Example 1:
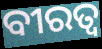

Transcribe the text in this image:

ବୀରତ୍ଵ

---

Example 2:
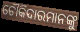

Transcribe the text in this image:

ଚୌକିଦାରମାନଙ୍କୁ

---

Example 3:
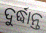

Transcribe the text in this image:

ଦୁର୍ଦ୍ଧାନ୍ତ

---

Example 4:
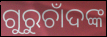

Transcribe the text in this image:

ଗୁରୁଚାଁଦଙ୍କ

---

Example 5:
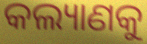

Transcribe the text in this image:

କଲ୍ୟାଣକୁ